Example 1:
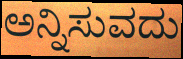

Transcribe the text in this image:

ಅನ್ನಿಸುವದು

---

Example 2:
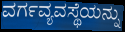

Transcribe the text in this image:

ವರ್ಗವ್ಯವಸ್ಥೆಯನ್ನು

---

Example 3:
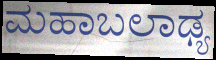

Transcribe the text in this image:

ಮಹಾಬಲಾಢ್ಯ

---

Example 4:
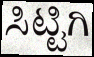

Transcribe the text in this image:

ಸಿಟ್ಟಿಗಿ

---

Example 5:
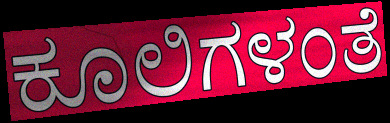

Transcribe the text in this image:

ಕೂಲಿಗಳಂತೆ